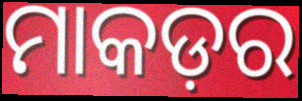
ମାକଡ଼ର